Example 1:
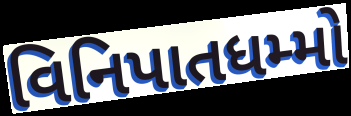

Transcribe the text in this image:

વિનિપાતધમ્મો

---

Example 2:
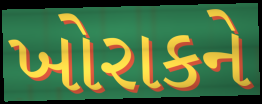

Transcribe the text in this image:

ખોરાકને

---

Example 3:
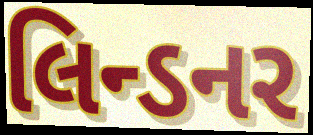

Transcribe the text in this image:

લિન્ડનર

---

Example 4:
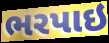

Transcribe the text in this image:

ભરપાઇ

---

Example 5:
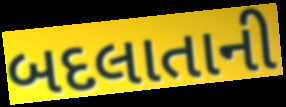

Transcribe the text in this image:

બદલાતાની